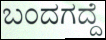
ಬಂದಗದ್ದೆ